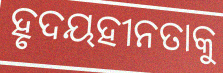
ହୃଦୟହୀନତାକୁ